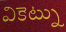
వికెట్ను